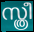
സ്ത്രീ